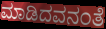
ಮಾಡಿದವನಂತೆ